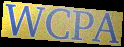
WCPA